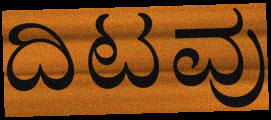
ದಿಟವು